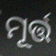
ମୂର୍ତ୍ତ